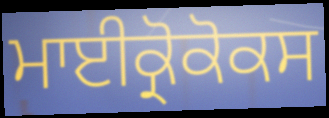
ਮਾਈਕ੍ਰੋਕੋਕਸ